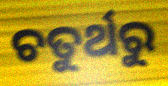
ଚତୁର୍ଥରୁ